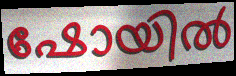
ഷോയിൽ